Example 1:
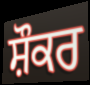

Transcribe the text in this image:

ਸ਼ੌਕਰ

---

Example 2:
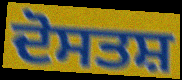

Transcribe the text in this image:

ਦੋਸਤਸ਼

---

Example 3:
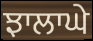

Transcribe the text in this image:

ਝਾਲਾਘੇ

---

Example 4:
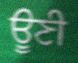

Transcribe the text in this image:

ਊਣੀ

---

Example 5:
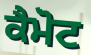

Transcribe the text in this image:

ਕੈਮੋਟ